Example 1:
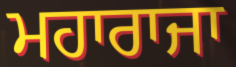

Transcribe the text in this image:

ਮਹਾਰਾਜਾ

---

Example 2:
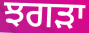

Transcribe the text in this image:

ਝਗੜਾ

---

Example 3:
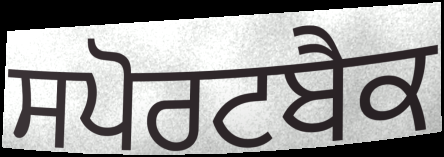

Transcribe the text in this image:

ਸਪੋਰਟਬੈਕ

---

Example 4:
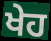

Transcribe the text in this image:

ਖੇਹ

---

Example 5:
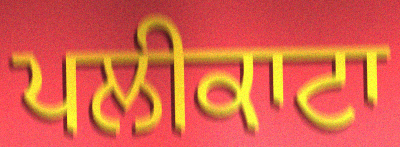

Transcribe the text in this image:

ਪਲੀਕਾਟਾ